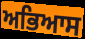
ਅਭਿਆਸ